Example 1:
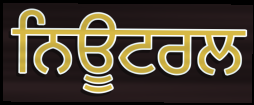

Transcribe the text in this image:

ਨਿਊਟਰਲ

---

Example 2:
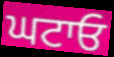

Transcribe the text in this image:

ਘਟਾਓ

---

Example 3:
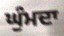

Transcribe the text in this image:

ਘੁੰਮਦਾ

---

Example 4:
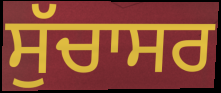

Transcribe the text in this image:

ਸੁੱਚਾਸਰ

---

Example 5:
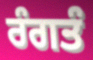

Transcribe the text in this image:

ਰੰਗਤੰ